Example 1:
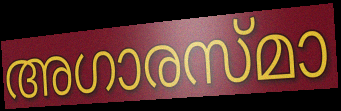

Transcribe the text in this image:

അഗാരസ്മാ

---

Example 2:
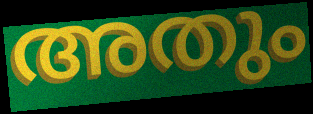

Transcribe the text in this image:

അതും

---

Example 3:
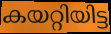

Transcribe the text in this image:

കയറ്റിയിട്ട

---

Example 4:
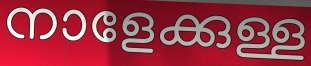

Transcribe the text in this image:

നാളേക്കുള്ള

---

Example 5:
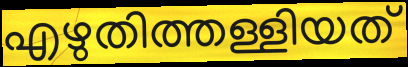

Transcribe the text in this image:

എഴുതിത്തള്ളിയത്